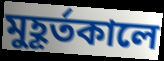
মুহূর্তকালে